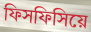
ফিসফিসিয়ে